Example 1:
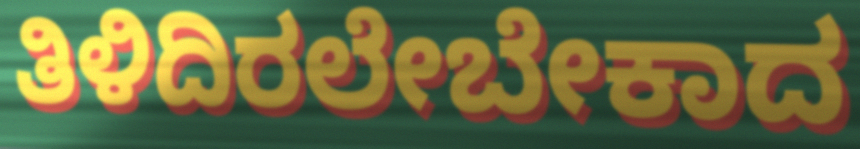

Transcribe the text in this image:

ತಿಳಿದಿರಲೇಬೇಕಾದ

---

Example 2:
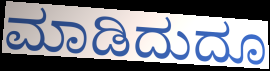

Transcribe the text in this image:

ಮಾಡಿದುದೂ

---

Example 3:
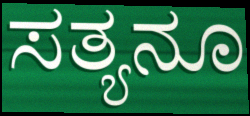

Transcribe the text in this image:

ಸತ್ಯನೂ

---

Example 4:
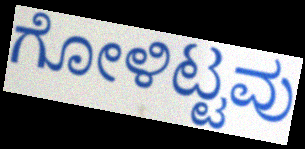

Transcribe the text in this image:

ಗೋಳಿಟ್ಟವು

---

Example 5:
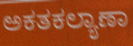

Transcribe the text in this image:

ಅಕತಕಲ್ಯಾಣಾ